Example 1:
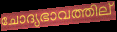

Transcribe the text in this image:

ചോദ്യഭാവത്തില്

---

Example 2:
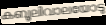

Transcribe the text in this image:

കബൂലിവാലയോടു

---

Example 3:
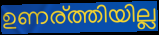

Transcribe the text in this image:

ഉണര്ത്തിയില്ല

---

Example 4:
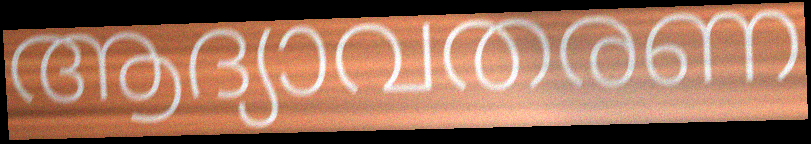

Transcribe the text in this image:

ആദ്യാവതരണ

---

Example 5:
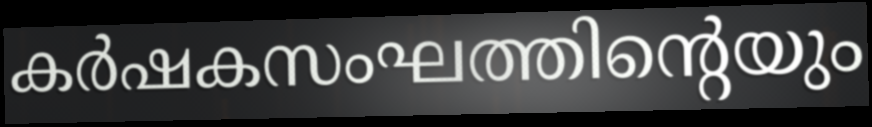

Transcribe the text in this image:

കർഷകസംഘത്തിന്റെയും